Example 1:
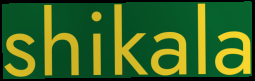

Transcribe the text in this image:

shikala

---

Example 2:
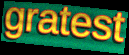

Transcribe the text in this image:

gratest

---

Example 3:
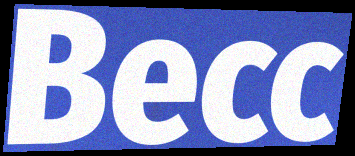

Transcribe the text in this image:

Becc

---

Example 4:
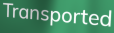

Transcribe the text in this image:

Transported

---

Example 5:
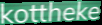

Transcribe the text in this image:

kottheke